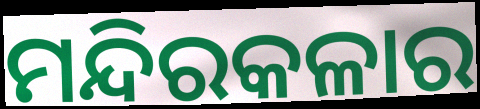
ମନ୍ଦିରକଳାର